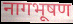
नागभूषण